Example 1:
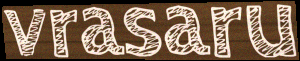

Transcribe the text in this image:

vrasaru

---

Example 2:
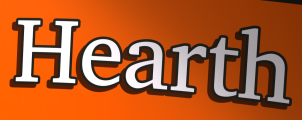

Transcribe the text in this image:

Hearth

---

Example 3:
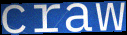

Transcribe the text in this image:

craw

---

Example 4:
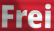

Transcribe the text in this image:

Frei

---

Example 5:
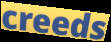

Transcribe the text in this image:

creeds